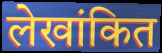
लेखांकित